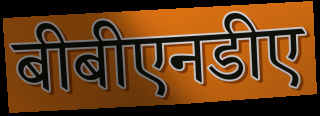
बीबीएनडीए